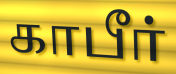
காபீர்